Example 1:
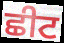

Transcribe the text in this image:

ਛੀਟ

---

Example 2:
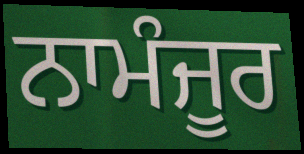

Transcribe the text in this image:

ਨਾਮੰਜੂਰ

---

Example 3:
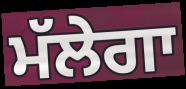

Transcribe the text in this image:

ਮੱਲੇਗਾ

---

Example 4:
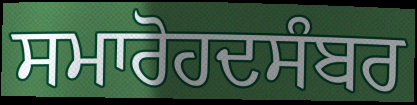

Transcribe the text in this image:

ਸਮਾਰੋਹਦਸੰਬਰ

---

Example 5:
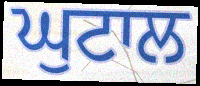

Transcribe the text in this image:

ਘੁਟਾਲ